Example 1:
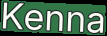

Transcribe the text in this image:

Kenna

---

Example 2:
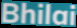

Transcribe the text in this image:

Bhilai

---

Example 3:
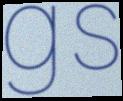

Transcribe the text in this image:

gs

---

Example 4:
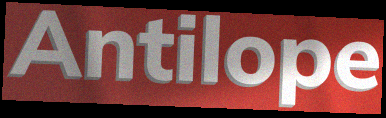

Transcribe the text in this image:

Antilope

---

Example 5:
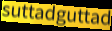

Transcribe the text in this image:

suttadguttad